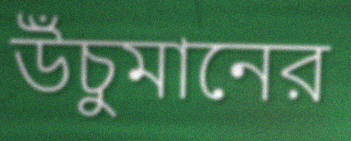
উঁচুমানের